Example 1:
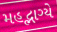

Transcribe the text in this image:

મહદ્ભાગ્યે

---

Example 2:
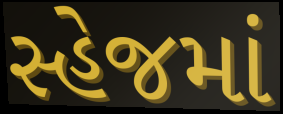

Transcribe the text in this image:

સ્હેજમાં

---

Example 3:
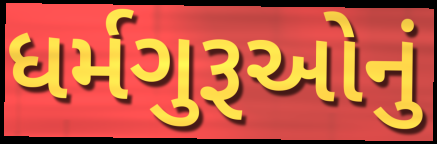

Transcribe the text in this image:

ધર્મગુરૂઓનું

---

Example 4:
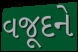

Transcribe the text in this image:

વજૂદને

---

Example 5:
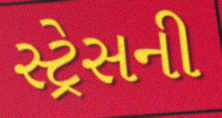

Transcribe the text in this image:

સ્ટ્રેસની